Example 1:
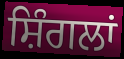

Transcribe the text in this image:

ਸ਼ਿੰਗਲਾਂ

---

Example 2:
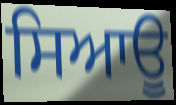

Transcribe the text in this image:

ਸਿਆਊ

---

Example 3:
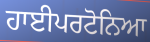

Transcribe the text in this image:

ਹਾਈਪਰਟੋਨਿਆ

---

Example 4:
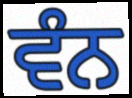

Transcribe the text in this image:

ਵੰਨ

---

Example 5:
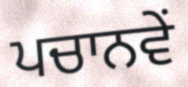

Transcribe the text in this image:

ਪਚਾਨਵੇਂ